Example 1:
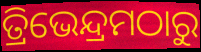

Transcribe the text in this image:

ତ୍ରିଭେନ୍ଦ୍ରମଠାରୁ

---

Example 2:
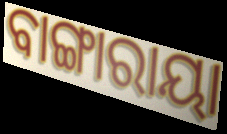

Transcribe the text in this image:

ବାଙ୍ଗାରାୟା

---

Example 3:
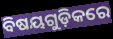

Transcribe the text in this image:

ବିଷୟଗୁଡ଼ିକରେ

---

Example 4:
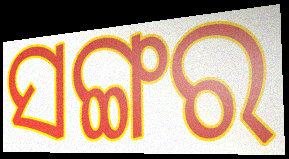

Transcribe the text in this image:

ସଙ୍ଗର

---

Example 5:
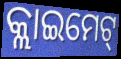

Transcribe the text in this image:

କ୍ଲାଇମେଟ୍